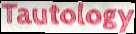
Tautology